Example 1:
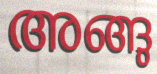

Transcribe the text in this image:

അങ്ങു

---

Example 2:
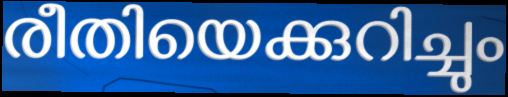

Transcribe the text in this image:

രീതിയെക്കുറിച്ചും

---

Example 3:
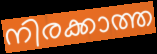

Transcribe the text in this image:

നിരക്കാത്ത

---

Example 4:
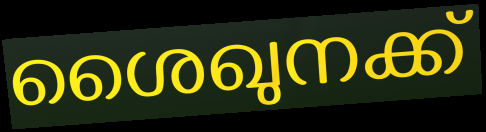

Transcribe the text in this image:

ശൈഖുനക്ക്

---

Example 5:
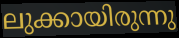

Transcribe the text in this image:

ലുക്കായിരുന്നു